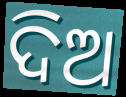
ଦିଅ